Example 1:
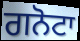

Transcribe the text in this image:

ਗਨੋਟਾ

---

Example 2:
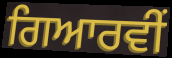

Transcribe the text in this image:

ਗਿਆਰਵੀਂ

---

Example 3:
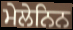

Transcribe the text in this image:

ਮੇਲੇਨਿਨ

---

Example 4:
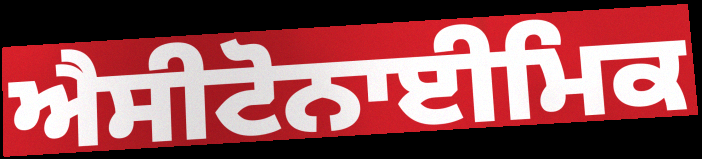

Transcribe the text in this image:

ਐਸੀਟੋਨਾਈਮਿਕ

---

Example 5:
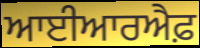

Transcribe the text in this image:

ਆਈਆਰਐਫ਼